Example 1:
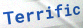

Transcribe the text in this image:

Terrific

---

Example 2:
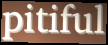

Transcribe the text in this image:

pitiful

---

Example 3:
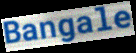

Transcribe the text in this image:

Bangale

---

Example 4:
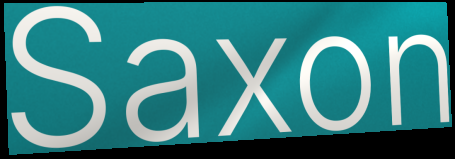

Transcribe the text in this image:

Saxon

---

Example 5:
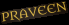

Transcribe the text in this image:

PRAVEEN